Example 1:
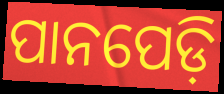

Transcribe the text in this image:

ପାନପେଡ଼ି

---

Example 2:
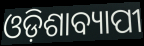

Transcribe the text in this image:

ଓଡ଼ିଶାବ୍ୟାପୀ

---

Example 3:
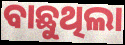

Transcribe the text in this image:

ବାଛୁଥିଲା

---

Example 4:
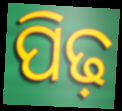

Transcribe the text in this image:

ପିଢ଼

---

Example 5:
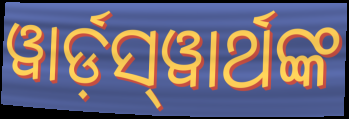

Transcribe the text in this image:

ୱାର୍ଡ଼ସ୍‌ୱାର୍ଥଙ୍କ